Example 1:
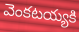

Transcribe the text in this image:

వెంకటయ్యకి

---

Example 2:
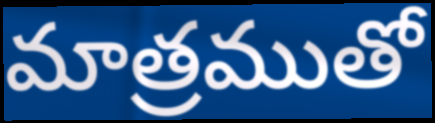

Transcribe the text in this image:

మాత్రముతో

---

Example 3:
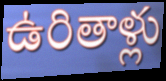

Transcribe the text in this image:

ఉరితాళ్లు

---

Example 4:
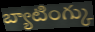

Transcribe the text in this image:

బ్యాటింగ్కు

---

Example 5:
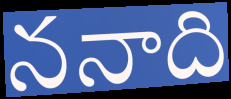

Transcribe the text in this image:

ననాది